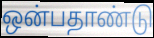
ஒன்பதாண்டு